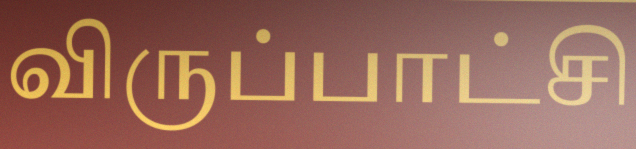
விருப்பாட்சி